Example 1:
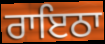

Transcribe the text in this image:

ਰਾਇਠਾ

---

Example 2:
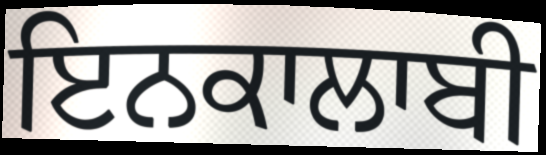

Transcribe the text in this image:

ਇਨਕਾਲਾਬੀ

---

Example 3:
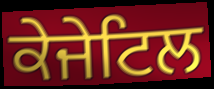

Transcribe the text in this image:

ਕੇਜੇਟਿਲ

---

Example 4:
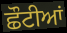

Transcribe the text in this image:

ਛੌਟੀਆਂ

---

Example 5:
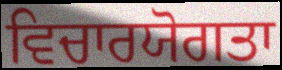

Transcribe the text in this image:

ਵਿਚਾਰਯੋਗਤਾ